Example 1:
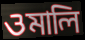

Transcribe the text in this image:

ওমালি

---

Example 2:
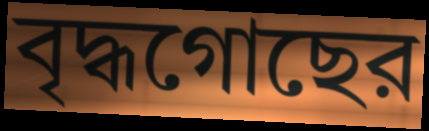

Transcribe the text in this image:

বৃদ্ধগোছের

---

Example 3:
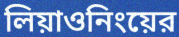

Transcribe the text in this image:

লিয়াওনিংয়ের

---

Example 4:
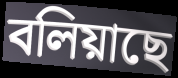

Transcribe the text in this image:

বলিয়াছে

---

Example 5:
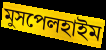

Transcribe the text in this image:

মুসপেলহাইম